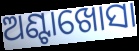
ଅଣ୍ଟାଖୋସା